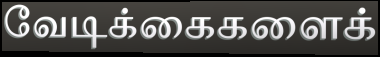
வேடிக்கைகளைக்